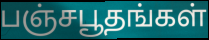
பஞ்சபூதங்கள்